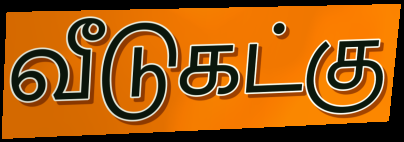
வீடுகட்கு